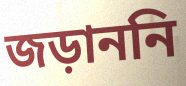
জড়াননি